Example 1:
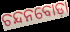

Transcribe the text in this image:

ଚନ୍ଦନବୋଡ଼ା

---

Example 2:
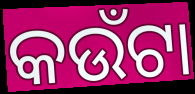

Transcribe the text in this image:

କଉଁଟା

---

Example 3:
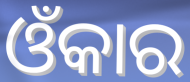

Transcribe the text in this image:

ଓଁକାର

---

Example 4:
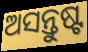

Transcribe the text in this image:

ଅସନ୍ତୁଷ୍ଟ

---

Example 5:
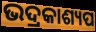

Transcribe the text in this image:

ଭଦ୍ରକାଶ୍ୟପ